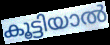
കൂട്ടിയാൽ